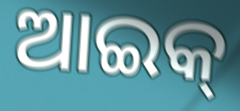
ଆଇକ୍